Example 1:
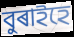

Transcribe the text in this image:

বুৰাইহে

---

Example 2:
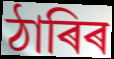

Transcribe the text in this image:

ঠাৰিৰ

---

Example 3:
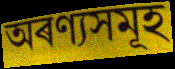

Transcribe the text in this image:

অৰণ্যসমূহ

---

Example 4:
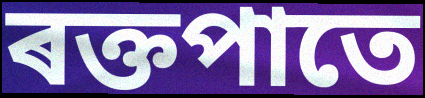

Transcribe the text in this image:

ৰক্তপাতে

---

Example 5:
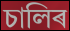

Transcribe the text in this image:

চালিৰ